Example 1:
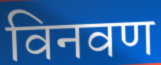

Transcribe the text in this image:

विनवण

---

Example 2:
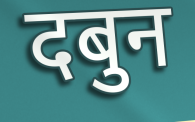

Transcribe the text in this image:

दबुन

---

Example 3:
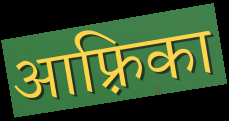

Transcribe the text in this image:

आफ़्रिका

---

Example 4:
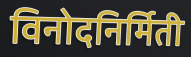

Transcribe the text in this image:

विनोदनिर्मिती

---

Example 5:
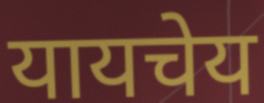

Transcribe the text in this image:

यायचेय